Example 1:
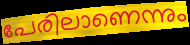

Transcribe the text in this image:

പേരിലാണെന്നും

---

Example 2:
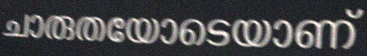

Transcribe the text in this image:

ചാരുതയോടെയാണ്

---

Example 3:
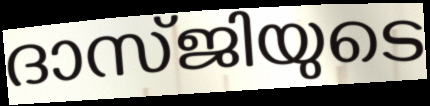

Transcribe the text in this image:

ദാസ്ജിയുടെ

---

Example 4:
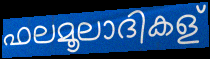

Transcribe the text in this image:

ഫലമൂലാദികള്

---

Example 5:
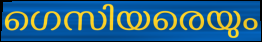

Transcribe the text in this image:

ഗെസിയരെയും